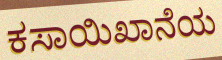
ಕಸಾಯಿಖಾನೆಯ